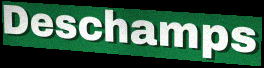
Deschamps